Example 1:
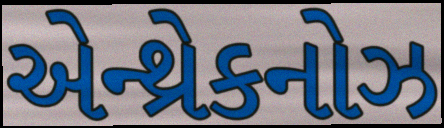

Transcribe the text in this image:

એન્થ્રેકનોઝ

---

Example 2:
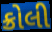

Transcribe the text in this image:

ક્રોલી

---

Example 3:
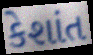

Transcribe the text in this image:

કેશાંત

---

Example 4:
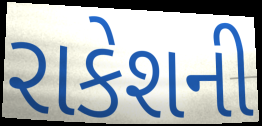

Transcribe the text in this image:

રાકેશની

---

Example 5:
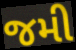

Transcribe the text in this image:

જમી